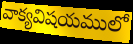
వాక్యవిషయములో